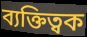
ব্যক্তিত্বক